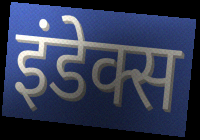
इंडेक्स